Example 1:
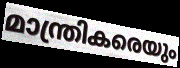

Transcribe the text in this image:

മാന്ത്രികരെയും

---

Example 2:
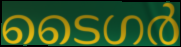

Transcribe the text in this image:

ടൈഗർ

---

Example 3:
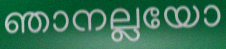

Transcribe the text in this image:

ഞാനല്ലയോ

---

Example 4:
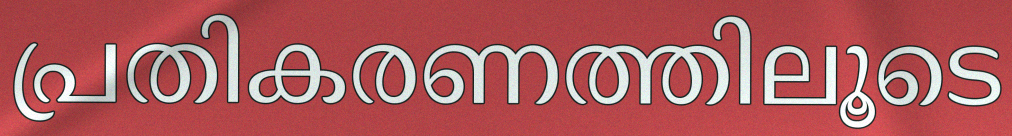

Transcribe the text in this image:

പ്രതികരണത്തിലൂടെ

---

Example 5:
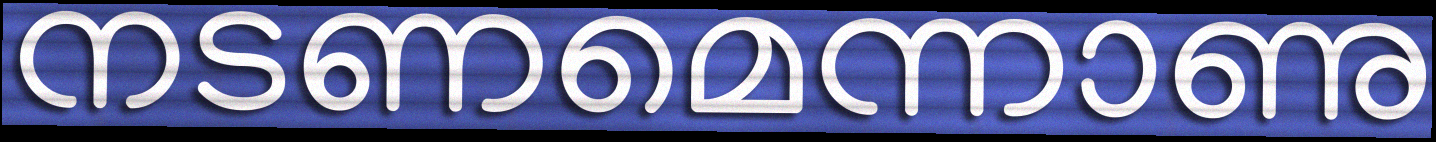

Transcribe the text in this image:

നടണമെന്നാണു